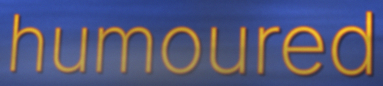
humoured